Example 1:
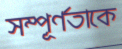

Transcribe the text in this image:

সম্পূর্ণতাকে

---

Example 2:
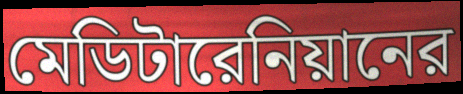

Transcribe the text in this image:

মেডিটারেনিয়ানের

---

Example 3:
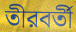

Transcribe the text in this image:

তীরবর্তী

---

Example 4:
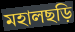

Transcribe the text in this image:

মহালছড়ি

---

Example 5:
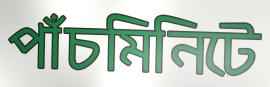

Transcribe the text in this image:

পাঁচমিনিটে